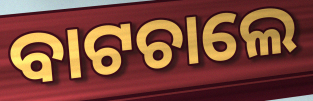
ବାଟଚାଲେ